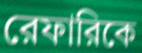
রেফারিকে